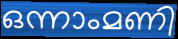
ഒന്നാംമണി